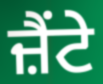
ਜ਼ੈਂਟੇ